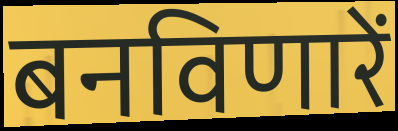
बनविणारें